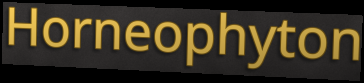
Horneophyton